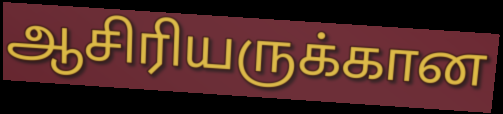
ஆசிரியருக்கான